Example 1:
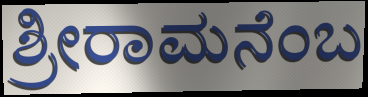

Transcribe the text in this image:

ಶ್ರೀರಾಮನೆಂಬ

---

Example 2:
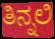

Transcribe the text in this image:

ತಿನ್ನಲಿ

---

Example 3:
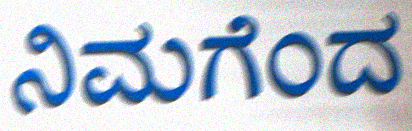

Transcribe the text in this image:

ನಿಮಗೆಂದ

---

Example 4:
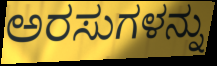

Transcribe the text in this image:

ಅರಸುಗಳನ್ನು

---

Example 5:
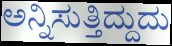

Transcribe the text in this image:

ಅನ್ನಿಸುತ್ತಿದ್ದುದು